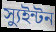
স্যুইন্টন